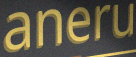
aneru